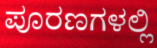
ಪೂರಣಗಳಲ್ಲಿ